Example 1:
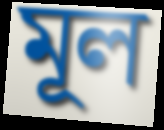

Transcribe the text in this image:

মূল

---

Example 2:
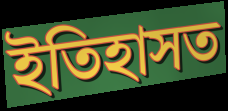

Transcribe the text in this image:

ইতিহাসত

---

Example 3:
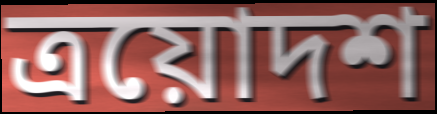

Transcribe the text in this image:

ত্ৰয়োদশ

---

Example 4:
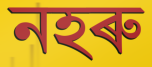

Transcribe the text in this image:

নহৰু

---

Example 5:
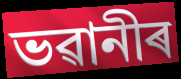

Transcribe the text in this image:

ভৱানীৰ